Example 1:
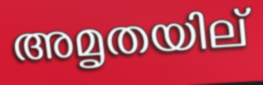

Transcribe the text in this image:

അമൃതയില്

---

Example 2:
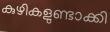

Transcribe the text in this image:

കുഴികളുണ്ടാക്കി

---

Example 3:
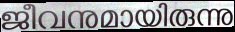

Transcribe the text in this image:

ജീവനുമായിരുന്നു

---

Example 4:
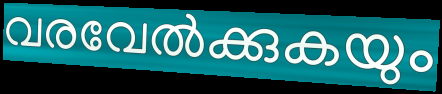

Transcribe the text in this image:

വരവേൽക്കുകയും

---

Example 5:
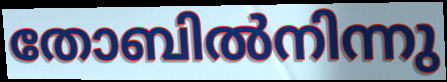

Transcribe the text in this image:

തോബിൽനിന്നു